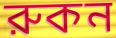
ৰুকন